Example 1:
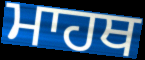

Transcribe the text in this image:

ਮਾਹਥ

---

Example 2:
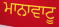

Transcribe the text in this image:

ਮਾਨਾਵਾਟੂ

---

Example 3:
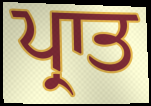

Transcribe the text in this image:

ਪ੍ਰਾਤ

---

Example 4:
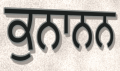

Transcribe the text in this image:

ਕੁਨਾਨਨ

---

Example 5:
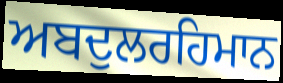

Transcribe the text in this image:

ਅਬਦੁਲਰਹਿਮਾਨ